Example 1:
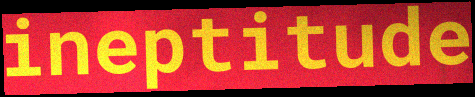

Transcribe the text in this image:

ineptitude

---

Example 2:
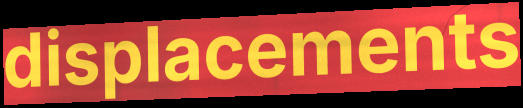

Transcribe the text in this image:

displacements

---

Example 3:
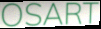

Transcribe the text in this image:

OSART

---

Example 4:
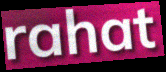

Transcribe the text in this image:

rahat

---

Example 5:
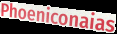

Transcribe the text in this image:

Phoeniconaias